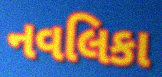
નવલિકા